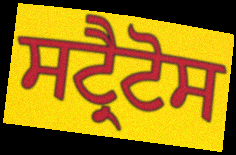
ਸਟ੍ਰੈਟੋਸ